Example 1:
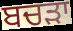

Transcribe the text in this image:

ਬਚੜਾ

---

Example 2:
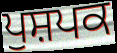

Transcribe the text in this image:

ਪੁਸ਼ਪਕ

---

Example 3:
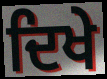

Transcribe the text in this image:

ਦਿਖੇ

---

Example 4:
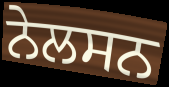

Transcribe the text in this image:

ਨੇਲਸਨ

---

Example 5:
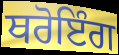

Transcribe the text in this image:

ਥਰੋਇੰਗ